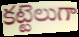
కట్టెలుగా